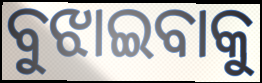
ବୁଝାଇବାକୁ